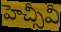
హెచ్సీవీ